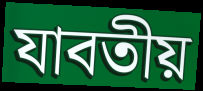
যাবতীয়